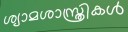
ശ്യാമശാസ്ത്രികൾ